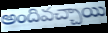
అందివచ్చాయి